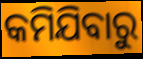
କମିଯିବାରୁ